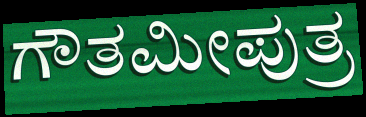
ಗೌತಮೀಪುತ್ರ